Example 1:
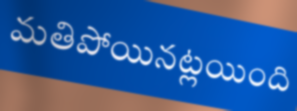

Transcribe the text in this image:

మతిపోయినట్లయింది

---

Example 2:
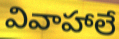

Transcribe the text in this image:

వివాహాలే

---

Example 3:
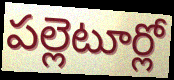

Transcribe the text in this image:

పల్లెటూర్లో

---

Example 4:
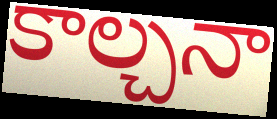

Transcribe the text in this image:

కాల్చనా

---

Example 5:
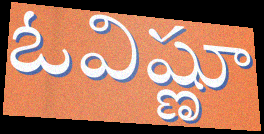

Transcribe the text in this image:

ఓవిష్ణూ